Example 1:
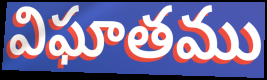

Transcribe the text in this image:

విఘాతము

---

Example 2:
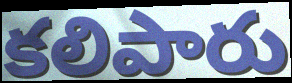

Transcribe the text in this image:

కలిపారు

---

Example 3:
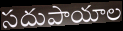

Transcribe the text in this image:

సదుపాయాల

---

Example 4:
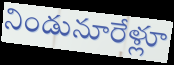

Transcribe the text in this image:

నిండునూరేళ్లూ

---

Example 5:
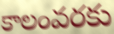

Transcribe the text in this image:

కాలంవరకు